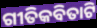
ଗୀତିକବିତାଟି